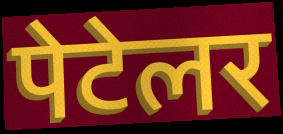
पेटेलर